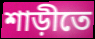
শাড়ীতে